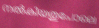
നൽകിയതുപോലെ